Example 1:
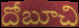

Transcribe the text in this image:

దోబూచి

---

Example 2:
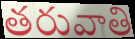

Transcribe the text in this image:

తరువాతి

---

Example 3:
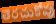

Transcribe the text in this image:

తెరచుకోవు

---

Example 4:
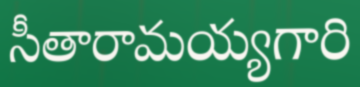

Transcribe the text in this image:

సీతారామయ్యగారి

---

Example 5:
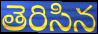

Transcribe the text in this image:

తెరిసిన